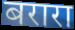
बरारा